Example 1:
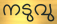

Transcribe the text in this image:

നടുവു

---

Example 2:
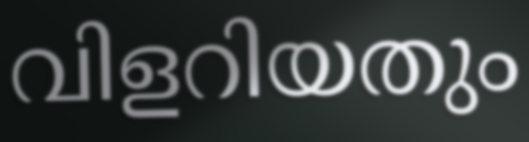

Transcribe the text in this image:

വിളറിയതും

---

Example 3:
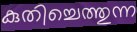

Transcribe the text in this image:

കുതിച്ചെത്തുന്ന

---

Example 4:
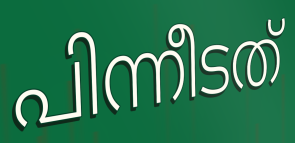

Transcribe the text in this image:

പിന്നീടത്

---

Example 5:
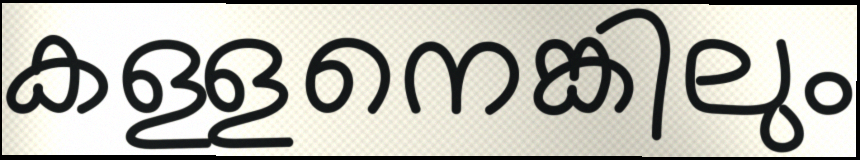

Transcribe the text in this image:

കള്ളനെങ്കിലും